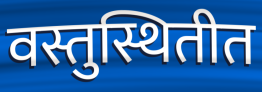
वस्तुस्थितीत